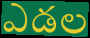
ఎడల